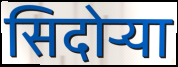
सिदोर्‍या